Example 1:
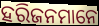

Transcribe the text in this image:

ହରିଜନମାନେ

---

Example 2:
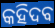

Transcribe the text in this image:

କହିଦବ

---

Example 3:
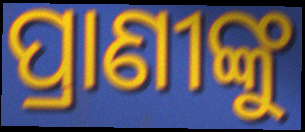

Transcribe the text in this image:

ପ୍ରାଣୀଙ୍କୁ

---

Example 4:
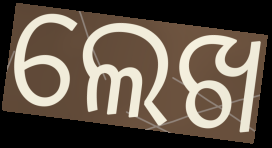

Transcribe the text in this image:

ଲେଖ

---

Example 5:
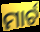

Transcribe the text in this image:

ମାର୍ଚ